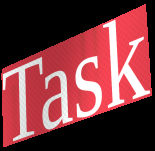
Task